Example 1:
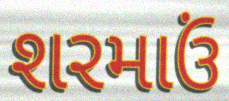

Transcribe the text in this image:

શરમાઉં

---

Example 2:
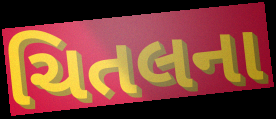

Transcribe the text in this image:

ચિતલના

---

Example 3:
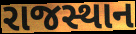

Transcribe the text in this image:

રાજસ્થાન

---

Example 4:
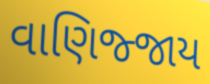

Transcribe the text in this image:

વાણિજ્જાય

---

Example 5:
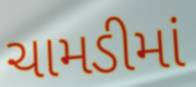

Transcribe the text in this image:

ચામડીમાં